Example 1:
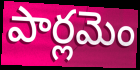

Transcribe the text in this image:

పార్లమెం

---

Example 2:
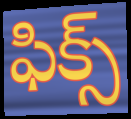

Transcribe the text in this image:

ఫిక్స్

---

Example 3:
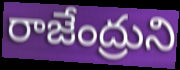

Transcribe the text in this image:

రాజేంద్రుని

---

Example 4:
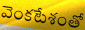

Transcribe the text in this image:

వెంకటేశంతో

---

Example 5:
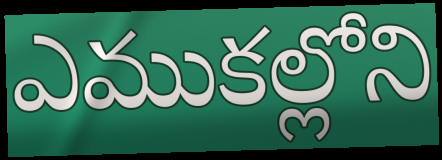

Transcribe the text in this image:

ఎముకల్లోని